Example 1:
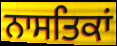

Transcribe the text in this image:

ਨਾਸਤਿਕਾਂ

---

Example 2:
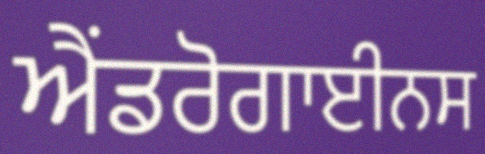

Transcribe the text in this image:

ਐਂਡਰੋਗਾਈਨਸ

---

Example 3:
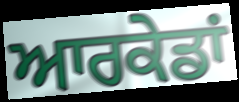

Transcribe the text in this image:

ਆਰਕੇਡਾਂ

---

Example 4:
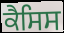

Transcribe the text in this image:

ਕੈਸਿਸ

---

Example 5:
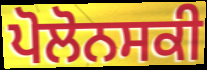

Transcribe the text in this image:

ਪੋਲੋਨਸਕੀ